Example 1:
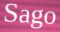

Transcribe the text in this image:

Sago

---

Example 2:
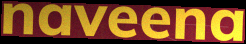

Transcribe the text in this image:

naveena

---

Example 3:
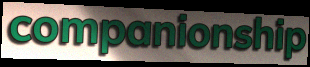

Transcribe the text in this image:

companionship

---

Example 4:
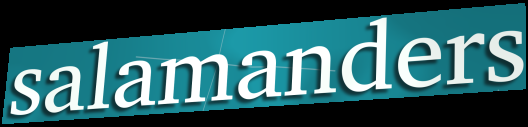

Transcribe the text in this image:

salamanders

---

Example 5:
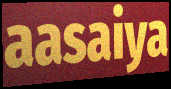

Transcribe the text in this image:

aasaiya